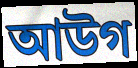
আউগ